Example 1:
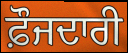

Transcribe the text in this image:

ਫ਼ੌਜਦਾਰੀ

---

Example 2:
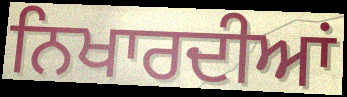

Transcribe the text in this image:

ਨਿਖਾਰਦੀਆਂ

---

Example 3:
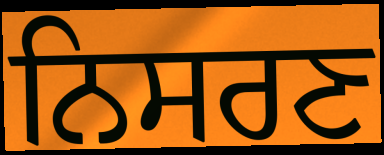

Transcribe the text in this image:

ਨਿਸਰਣ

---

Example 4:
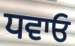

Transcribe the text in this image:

ਧਵਾਓ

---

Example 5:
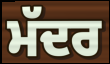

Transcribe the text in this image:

ਮੱਦਰ